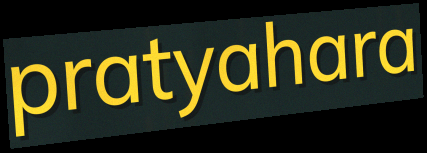
pratyahara